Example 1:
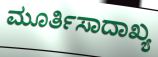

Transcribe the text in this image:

ಮೂರ್ತಿಸಾದಾಖ್ಯ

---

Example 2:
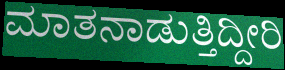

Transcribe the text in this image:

ಮಾತನಾಡುತ್ತಿದ್ದೀರಿ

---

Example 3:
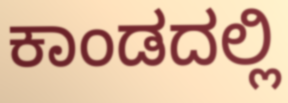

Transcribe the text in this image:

ಕಾಂಡದಲ್ಲಿ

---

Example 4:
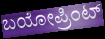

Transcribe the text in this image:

ಬಯೋಪ್ರಿಂಟ್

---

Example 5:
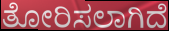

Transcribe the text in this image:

ತೋರಿಸಲಾಗಿದೆ